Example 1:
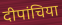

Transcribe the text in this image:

दीपांचिया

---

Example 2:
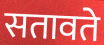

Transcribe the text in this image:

सतावते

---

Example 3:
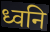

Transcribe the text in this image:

ध्वनि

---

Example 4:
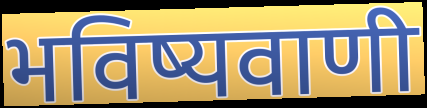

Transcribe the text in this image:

भविष्यवाणी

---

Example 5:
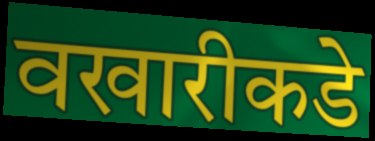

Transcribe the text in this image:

वखारीकडे